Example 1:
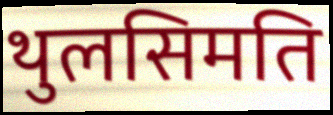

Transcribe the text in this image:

थुलसिमति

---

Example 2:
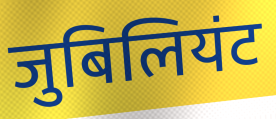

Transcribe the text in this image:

जुबिलियंट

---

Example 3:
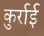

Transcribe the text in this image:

कुर्राई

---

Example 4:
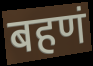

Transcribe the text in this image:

बहणं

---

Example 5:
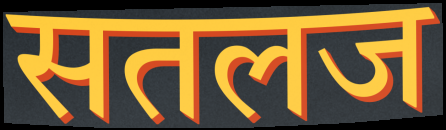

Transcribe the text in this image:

सतलज